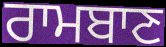
ਰਾਮਬਾਣ